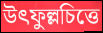
উৎফুল্লচিত্তে